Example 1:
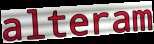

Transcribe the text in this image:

alteram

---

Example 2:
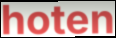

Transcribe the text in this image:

hoten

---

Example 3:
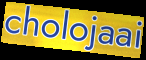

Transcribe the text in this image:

cholojaai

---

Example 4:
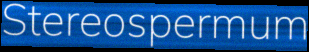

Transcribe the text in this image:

Stereospermum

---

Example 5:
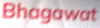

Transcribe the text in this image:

Bhagawat